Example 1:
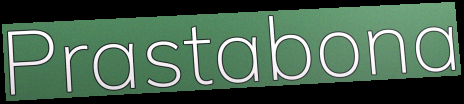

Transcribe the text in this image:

Prastabona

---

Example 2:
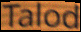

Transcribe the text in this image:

Talod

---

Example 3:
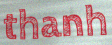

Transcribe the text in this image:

thanh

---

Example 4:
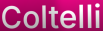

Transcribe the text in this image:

Coltelli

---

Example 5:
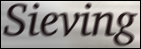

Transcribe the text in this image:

Sieving